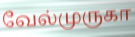
வேல்முருகா